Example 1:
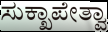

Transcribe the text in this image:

ಸುಕ್ಖಾಪೇತ್ವಾ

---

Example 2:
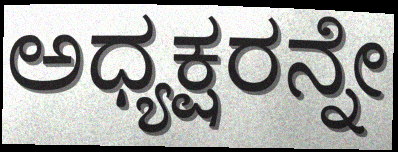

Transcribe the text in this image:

ಅಧ್ಯಕ್ಷರನ್ನೇ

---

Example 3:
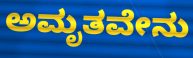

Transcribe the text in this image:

ಅಮೃತವೇನು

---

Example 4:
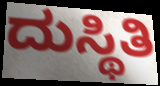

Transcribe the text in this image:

ದುಸ್ಥಿತಿ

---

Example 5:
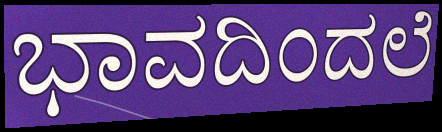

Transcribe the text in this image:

ಭಾವದಿಂದಲೆ